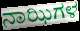
ನಾಝಿಗಳ